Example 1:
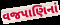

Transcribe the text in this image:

વજપાણિનાં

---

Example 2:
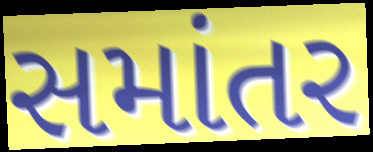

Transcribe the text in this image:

સમાંતર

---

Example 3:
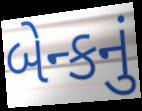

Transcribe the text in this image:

બેન્કનું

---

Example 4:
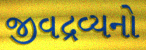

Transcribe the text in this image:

જીવદ્રવ્યનો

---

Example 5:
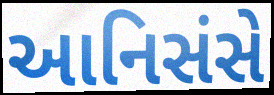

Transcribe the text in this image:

આનિસંસે